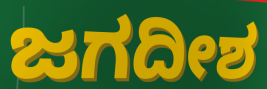
ಜಗದೀಶ